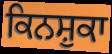
ਕਿਨਸ਼ੁਕਾ